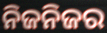
ନିଜନିଜର